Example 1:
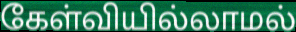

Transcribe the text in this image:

கேள்வியில்லாமல்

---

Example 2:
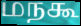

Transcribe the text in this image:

மநகூ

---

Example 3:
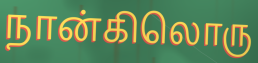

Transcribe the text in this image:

நான்கிலொரு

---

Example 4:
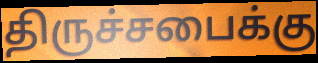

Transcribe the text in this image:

திருச்சபைக்கு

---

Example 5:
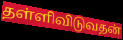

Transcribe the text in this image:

தள்ளிவிடுவதன்